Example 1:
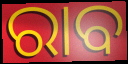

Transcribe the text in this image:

ରାବ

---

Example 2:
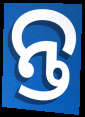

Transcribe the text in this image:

ନ୍ତ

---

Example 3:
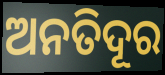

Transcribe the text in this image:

ଅନତିଦୂର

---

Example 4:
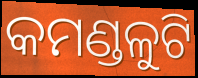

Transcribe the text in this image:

କମଣ୍ଡଳୁଟି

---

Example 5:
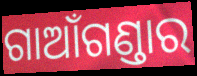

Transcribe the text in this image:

ଗାଆଁଗଣ୍ଡାର